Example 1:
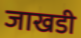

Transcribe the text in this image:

जाखडी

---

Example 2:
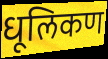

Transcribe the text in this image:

धूलिकण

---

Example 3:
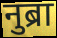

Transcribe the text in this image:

नुब्रा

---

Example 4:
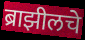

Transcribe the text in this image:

ब्राझीलचे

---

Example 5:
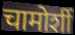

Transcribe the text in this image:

चामोर्शी